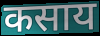
कसाय